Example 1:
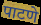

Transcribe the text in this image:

पाटणे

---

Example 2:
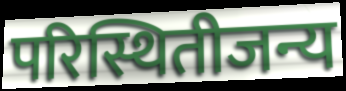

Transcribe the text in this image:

परिस्थितीजन्य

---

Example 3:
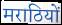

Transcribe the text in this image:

मराठियों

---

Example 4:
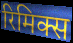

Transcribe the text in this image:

रिमिक्स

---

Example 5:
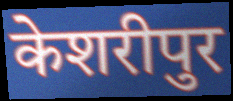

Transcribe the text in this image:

केशरीपुर